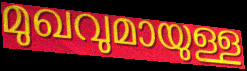
മുഖവുമായുള്ള